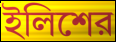
ইলিশের